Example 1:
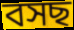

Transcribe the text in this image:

বসছ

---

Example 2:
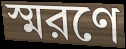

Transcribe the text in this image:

স্মরণে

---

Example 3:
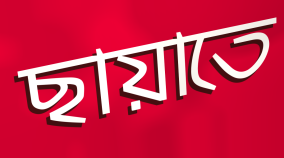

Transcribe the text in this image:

ছায়াতে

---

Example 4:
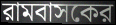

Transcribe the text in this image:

রামবাসকের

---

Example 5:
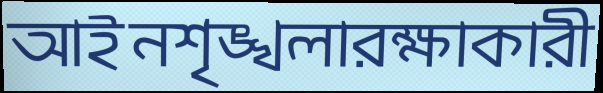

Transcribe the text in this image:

আইনশৃঙ্খলারক্ষাকারী